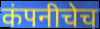
कंपनीचेच